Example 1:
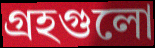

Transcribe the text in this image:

গ্রহগুলো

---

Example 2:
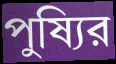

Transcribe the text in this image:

পুষ্যির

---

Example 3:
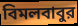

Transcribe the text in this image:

বিমলবাবুর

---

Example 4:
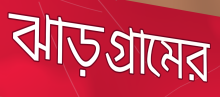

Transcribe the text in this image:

ঝাড়গ্রামের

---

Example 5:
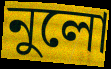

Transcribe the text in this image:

নুলো